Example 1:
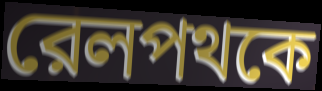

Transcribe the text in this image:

রেলপথকে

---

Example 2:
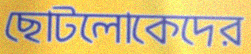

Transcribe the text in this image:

ছোটলোকেদের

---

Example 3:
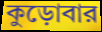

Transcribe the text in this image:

কুড়োবার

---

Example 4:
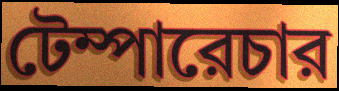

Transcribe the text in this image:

টেম্পারেচার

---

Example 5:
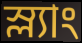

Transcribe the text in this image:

স্ল্যাং